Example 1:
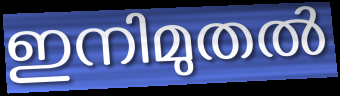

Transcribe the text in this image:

ഇനിമുതൽ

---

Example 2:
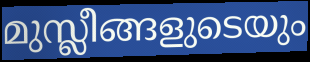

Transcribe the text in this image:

മുസ്ലീങ്ങളുടെയും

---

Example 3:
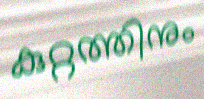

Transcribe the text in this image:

കുറ്റത്തിനും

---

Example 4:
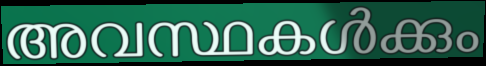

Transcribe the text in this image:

അവസ്ഥകൾക്കും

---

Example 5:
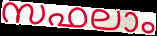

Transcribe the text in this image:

സഫലാം